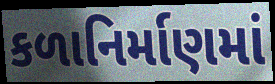
કળાનિર્માણમાં